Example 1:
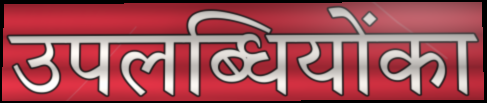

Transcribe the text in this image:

उपलब्धियोंका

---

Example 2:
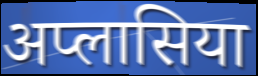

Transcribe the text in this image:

अप्लासिया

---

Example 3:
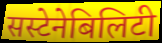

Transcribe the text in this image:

सस्टेनेबिलिटी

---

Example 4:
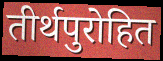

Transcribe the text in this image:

तीर्थपुरोहित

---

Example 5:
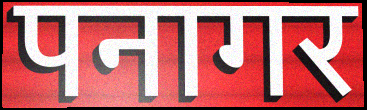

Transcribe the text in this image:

पनागर